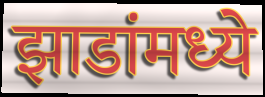
झाडांमध्ये